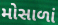
મોસાળાં